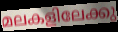
മലകളിലേക്കു